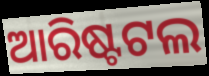
ଆରିଷ୍ଟଟଲ